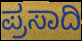
ಪ್ರಸಾದಿ